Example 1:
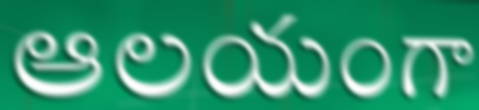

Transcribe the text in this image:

ఆలయంగా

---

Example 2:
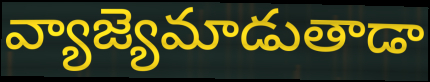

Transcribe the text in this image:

వ్యాజ్యెమాడుతాడా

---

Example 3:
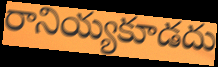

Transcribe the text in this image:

రానియ్యకూడదు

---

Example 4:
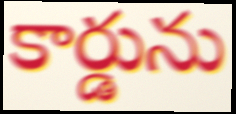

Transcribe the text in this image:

కార్డును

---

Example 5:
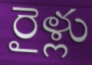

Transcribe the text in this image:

రైళ్లు